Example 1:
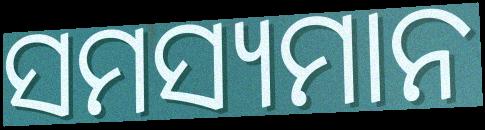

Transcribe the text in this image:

ସମସ୍ୟମାନ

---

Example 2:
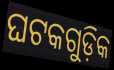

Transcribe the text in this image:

ଘଟକଗୁଡ଼ିକ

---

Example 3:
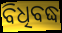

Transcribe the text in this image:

ବିଧିବଦ୍ଧ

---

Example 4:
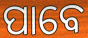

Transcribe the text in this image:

ପାବେ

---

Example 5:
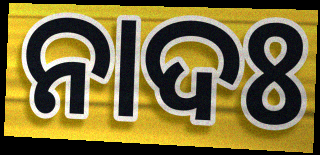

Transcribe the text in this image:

ନାଦଃ